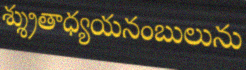
శ్శ్రుతాధ్యయనంబులును